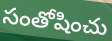
సంతోషించు